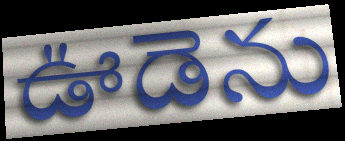
ఊడెను